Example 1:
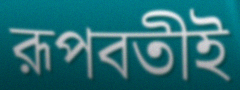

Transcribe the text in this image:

রূপবতীই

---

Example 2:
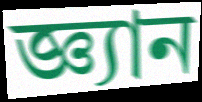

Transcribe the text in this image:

জ্ঞ্যান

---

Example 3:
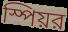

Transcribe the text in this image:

স্পিয়র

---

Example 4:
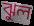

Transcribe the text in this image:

ঝুল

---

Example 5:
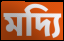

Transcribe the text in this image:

মদ্যি